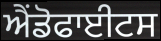
ਐਂਡੋਫਾਈਟਸ